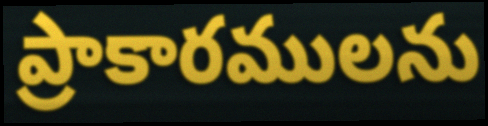
ప్రాకారములను